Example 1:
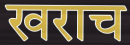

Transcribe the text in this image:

खराच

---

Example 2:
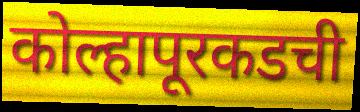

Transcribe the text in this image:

कोल्हापूरकडची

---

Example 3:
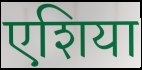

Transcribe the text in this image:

एशिया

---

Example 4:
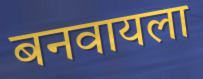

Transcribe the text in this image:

बनवायला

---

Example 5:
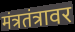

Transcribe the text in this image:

मंत्रतंत्रावर